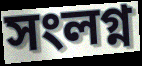
সংলগ্ন